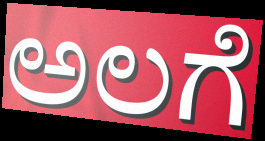
ಅಲಗೆ